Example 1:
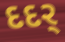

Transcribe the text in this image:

દદર્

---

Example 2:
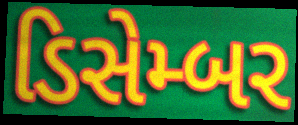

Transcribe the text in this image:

ડિસેમ્બર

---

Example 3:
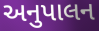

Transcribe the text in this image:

અનુપાલન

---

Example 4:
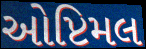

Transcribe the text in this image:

ઓપ્ટિમલ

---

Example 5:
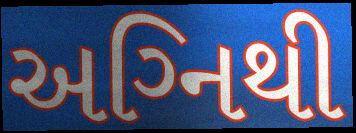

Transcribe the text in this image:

અગ્‍નિથી